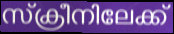
സ്‌ക്രീനിലേക്ക്